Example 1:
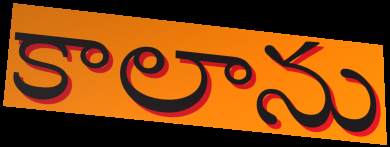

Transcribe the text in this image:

కాలాను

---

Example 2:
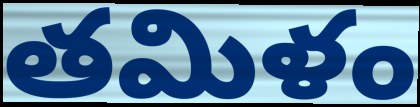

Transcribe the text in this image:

తమిళం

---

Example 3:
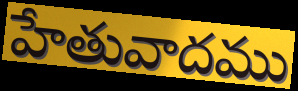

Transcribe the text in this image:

హేతువాదము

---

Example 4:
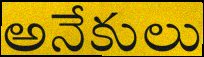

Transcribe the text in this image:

అనేకులు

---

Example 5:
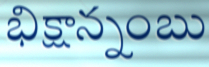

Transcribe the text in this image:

భిక్షాన్నంబు